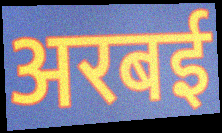
अरबई